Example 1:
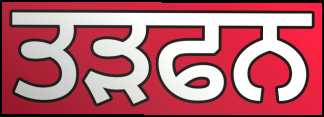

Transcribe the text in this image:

ਤੜਫਨ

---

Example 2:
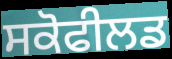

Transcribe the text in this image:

ਸਕੋਫੀਲਡ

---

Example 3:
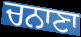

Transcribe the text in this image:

ਚਨਾਣਾ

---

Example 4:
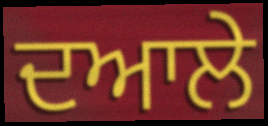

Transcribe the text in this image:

ਦਆਲੇ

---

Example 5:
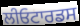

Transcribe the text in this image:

ਲੀਓਟਾਰਡਸ